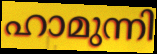
ഹാമുന്നി